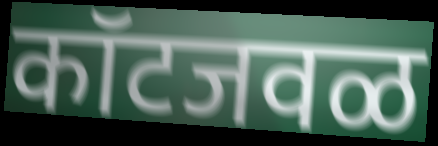
कॉटजवळ